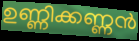
ഉണ്ണിക്കണ്ണൻ